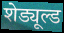
शेड्यूल्ड